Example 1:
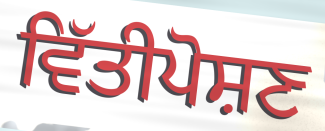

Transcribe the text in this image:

ਵਿੱਤੀਪੋਸ਼ਣ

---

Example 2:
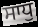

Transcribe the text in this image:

ਸਾਧੁ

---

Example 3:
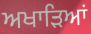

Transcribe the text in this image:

ਅਖਾੜਿਆਂ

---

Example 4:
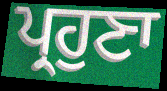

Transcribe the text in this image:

ਪ੍ਰਹੁਣਾ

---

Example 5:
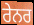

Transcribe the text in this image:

ਰੇਨਰ